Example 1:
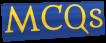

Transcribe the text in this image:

MCQs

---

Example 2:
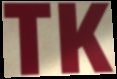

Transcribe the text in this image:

TK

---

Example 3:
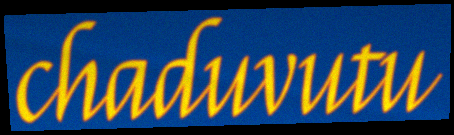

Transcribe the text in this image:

chaduvutu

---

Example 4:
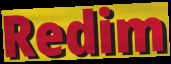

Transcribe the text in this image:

Redim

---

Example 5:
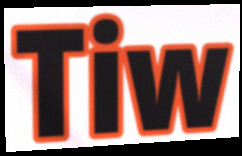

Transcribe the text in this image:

Tiw